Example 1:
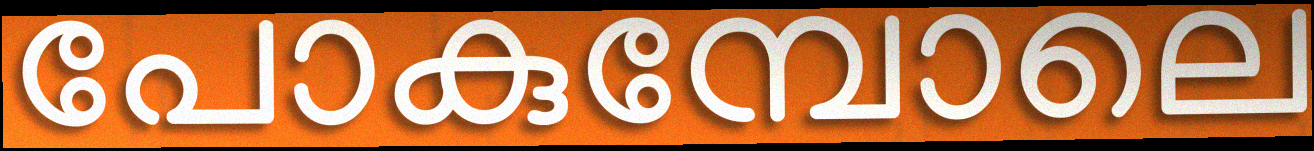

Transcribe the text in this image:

പോകുമ്പോലെ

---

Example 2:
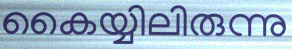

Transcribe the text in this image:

കൈയ്യിലിരുന്നു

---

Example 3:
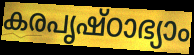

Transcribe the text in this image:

കരപൃഷ്ഠാഭ്യാം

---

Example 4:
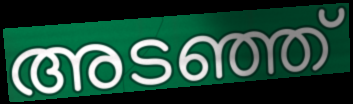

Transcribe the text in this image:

അടഞ്ഞ്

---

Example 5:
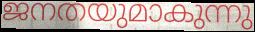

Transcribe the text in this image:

ജനതയുമാകുന്നു